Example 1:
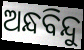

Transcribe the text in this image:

ଅନ୍ଧବିନ୍ଦୁ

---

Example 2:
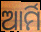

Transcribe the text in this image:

ଆର୍ମି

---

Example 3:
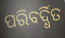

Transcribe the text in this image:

ପରିବର୍ଦ୍ଧିତ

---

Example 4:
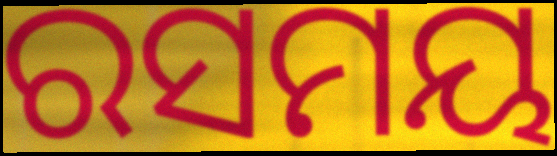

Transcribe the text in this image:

ରସମୟ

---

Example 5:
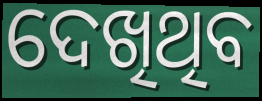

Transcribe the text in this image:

ଦେଖିଥିବ